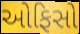
ઓફિસો